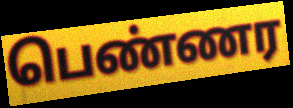
பெண்ணர